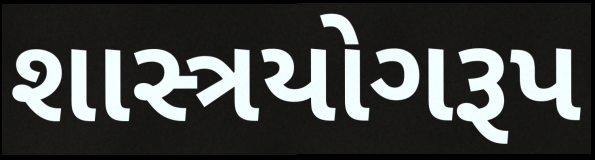
શાસ્ત્રયોગરૂપ